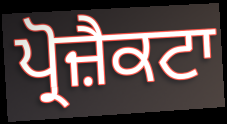
ਪ੍ਰੋਜ਼ੈਕਟਾ